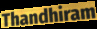
Thandhiram